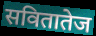
सवितातेज